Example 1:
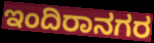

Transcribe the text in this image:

ಇಂದಿರಾನಗರ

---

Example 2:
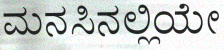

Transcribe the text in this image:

ಮನಸಿನಲ್ಲಿಯೇ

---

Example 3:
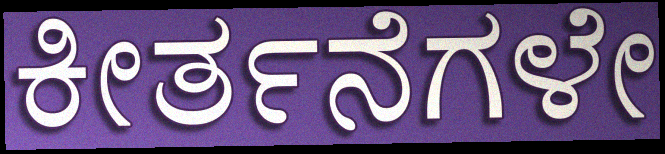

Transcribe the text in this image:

ಕೀರ್ತನೆಗಳೇ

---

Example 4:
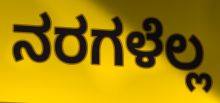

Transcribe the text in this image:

ನರಗಳೆಲ್ಲ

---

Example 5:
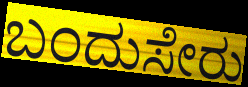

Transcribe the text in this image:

ಬಂದುಸೇರು